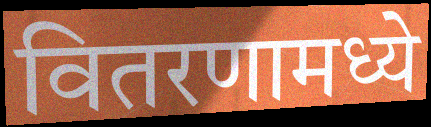
वितरणामध्ये